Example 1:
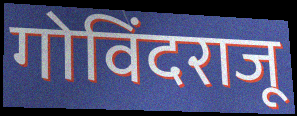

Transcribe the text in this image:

गोविंदराजू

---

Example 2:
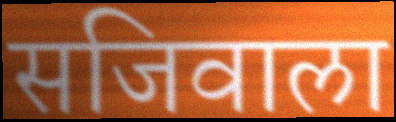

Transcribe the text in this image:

सजिवाला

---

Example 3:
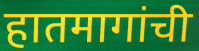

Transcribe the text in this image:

हातमागांची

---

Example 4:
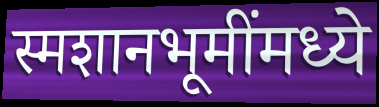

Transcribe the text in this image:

स्मशानभूमींमध्ये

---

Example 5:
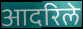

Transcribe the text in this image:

आदरिले